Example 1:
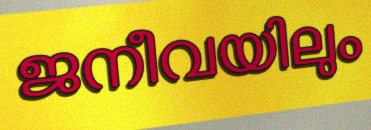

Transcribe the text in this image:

ജനീവയിലും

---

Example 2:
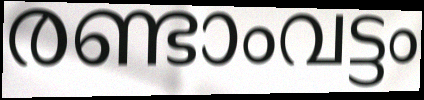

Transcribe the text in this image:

രണ്ടാംവട്ടം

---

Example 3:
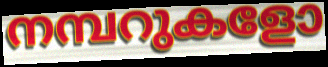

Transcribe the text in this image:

നമ്പറുകളോ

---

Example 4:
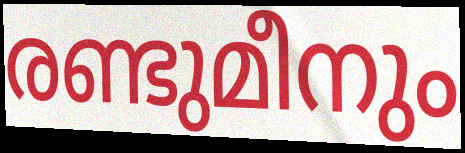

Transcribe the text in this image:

രണ്ടുമീനും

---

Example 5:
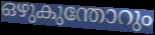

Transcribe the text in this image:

ഒഴുകുന്തോറും